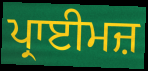
ਪ੍ਰਾਈਮਜ਼